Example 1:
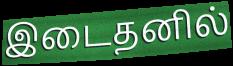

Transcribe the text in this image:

இடைதனில்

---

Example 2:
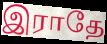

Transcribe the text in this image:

இராதே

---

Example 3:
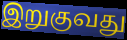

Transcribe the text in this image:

இறுகுவது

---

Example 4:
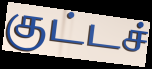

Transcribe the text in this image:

குட்டச்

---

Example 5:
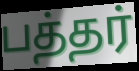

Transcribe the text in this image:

பத்தர்